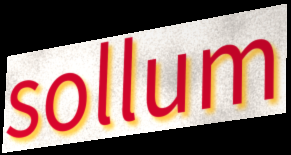
sollum